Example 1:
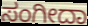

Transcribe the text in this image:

ಸಂಗೀದಾ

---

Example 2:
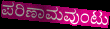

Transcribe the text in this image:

ಪರಿಣಾಮವುಂಟು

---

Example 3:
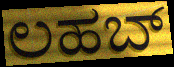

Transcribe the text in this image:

ಲಹಬ್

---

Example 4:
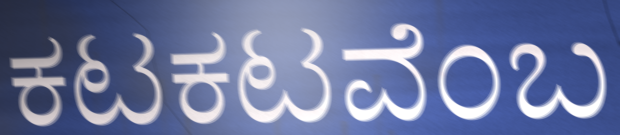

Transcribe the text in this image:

ಕಟಕಟವೆಂಬ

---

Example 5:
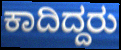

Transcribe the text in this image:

ಕಾದಿದ್ದರು